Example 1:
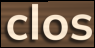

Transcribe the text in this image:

clos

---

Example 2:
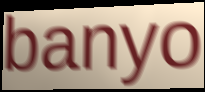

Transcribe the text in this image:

banyo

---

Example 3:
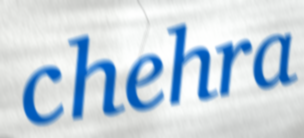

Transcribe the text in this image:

chehra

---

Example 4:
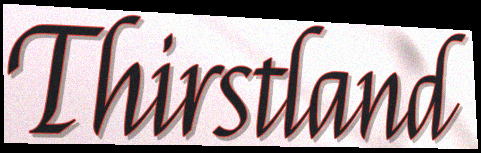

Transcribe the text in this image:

Thirstland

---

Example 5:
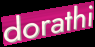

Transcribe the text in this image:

dorathi